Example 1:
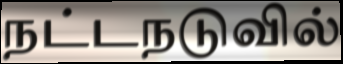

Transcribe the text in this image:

நட்டநடுவில்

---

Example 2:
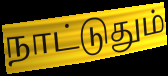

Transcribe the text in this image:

நாட்டுதும்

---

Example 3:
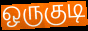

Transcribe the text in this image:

ஒருகுடி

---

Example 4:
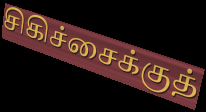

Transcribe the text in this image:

சிகிச்சைக்குத்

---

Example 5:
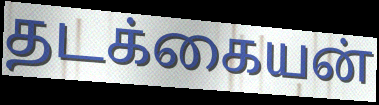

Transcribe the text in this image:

தடக்கையன்